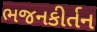
ભજનકીર્તન